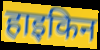
हाइकिन